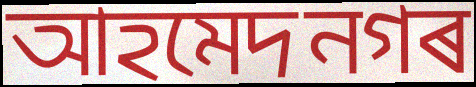
আহমেদনগৰ